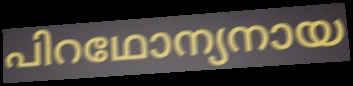
പിറഥോന്യനായ